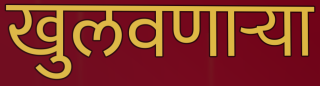
खुलवणाऱ्या